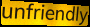
unfriendly